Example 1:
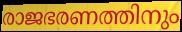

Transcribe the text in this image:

രാജഭരണത്തിനും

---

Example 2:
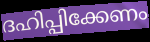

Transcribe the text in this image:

ദഹിപ്പിക്കേണം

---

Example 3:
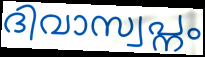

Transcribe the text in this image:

ദിവാസ്വപ്നം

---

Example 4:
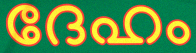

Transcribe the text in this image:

ദേഹം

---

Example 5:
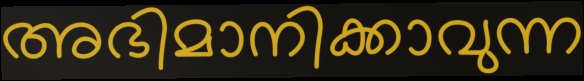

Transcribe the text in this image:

അഭിമാനിക്കാവുന്ന